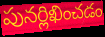
పునర్లిఖించడం